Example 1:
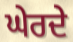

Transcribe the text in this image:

ਘੇਰਦੇ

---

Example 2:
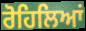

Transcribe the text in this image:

ਰੋਹਿਲਿਆਂ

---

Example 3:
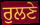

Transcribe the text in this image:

ਰੁਲਣੇ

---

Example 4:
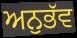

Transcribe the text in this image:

ਅਨੁਭੱਵ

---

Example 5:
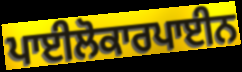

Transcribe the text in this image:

ਪਾਈਲੋਕਾਰਪਾਈਨ